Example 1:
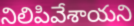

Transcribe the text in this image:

నిలిపివేశాయని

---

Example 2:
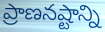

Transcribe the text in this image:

ప్రాణనష్టాన్ని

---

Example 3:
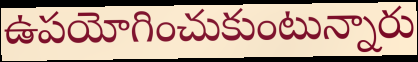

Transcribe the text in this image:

ఉపయోగించుకుంటున్నారు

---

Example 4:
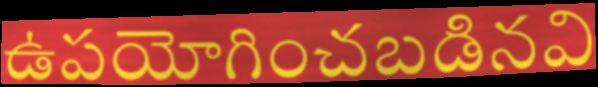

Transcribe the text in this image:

ఉపయోగించబడినవి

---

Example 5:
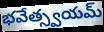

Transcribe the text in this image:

భవేత్స్వయమ్